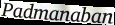
Padmanaban